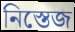
নিস্তেজ